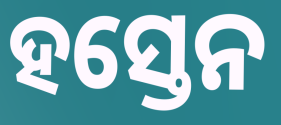
ହସ୍ତେନ